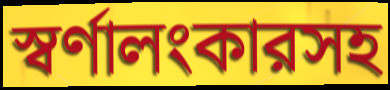
স্বর্ণালংকারসহ